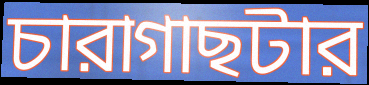
চারাগাছটার